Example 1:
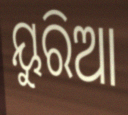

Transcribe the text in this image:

ୟୁରିଆ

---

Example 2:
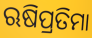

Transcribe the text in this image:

ଋଷିପ୍ରତିମା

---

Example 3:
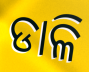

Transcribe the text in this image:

ଡାଳି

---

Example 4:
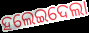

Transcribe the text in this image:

ହଲେଇଦେଲା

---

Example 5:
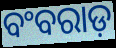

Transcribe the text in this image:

ବଂବରାଡ଼